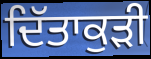
ਦਿੱਤਾਕੁੜੀ